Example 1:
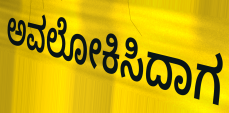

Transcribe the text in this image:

ಅವಲೋಕಿಸಿದಾಗ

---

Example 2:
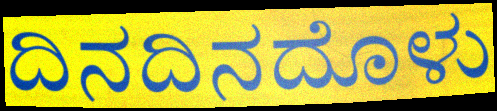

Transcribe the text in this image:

ದಿನದಿನದೊಳು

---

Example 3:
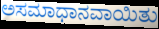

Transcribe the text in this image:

ಅಸಮಾಧಾನವಾಯಿತು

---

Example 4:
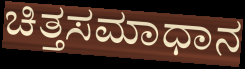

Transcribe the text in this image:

ಚಿತ್ತಸಮಾಧಾನ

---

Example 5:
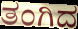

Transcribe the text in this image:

ತಂಗಿದ